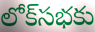
లోక్‌సభకు